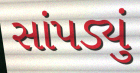
સાંપડ્યું